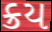
ક્રય